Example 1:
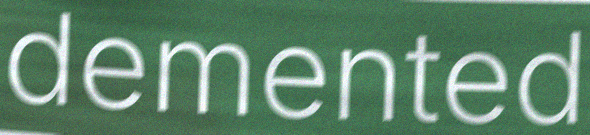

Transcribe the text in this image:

demented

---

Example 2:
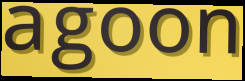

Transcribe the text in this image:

agoon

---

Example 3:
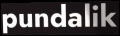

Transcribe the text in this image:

pundalik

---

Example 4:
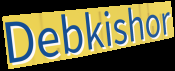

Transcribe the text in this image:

Debkishor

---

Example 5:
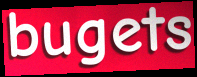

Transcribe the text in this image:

bugets